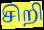
சிறி